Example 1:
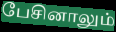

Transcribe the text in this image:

பேசினாலும்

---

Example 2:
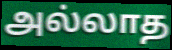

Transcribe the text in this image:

அல்லாத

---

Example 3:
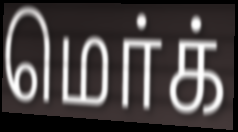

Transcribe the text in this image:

மெர்க்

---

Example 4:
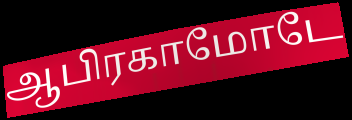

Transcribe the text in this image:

ஆபிரகாமோடே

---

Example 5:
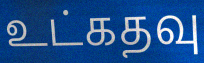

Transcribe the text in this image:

உட்கதவு